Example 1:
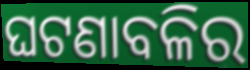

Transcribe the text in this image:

ଘଟଣାବଳିର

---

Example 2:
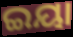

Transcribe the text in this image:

ଇୟା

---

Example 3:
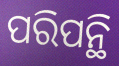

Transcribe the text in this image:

ପରିପନ୍ଥି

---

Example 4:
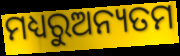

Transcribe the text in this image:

ମଧ୍ୟରୁଅନ୍ୟତମ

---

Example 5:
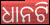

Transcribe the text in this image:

ଧାନଟି